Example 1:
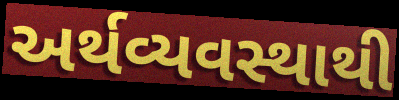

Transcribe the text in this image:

અર્થવ્યવસ્થાથી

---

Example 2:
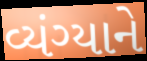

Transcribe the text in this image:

વ્યંગ્યાને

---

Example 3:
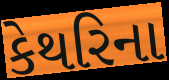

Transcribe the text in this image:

કેથરિના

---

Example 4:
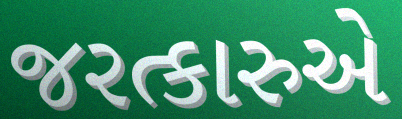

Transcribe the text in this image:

જરત્કારુએ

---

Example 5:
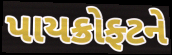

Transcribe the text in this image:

પાયક્રોફ્ટને